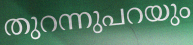
തുറന്നുപറയും